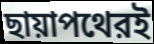
ছায়াপথেরই